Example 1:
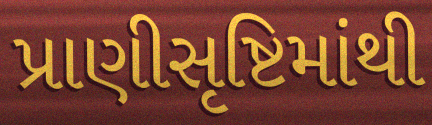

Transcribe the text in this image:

પ્રાણીસૃષ્ટિમાંથી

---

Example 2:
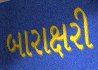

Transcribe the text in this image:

બારાક્ષરી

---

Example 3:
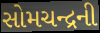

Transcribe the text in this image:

સોમચન્દ્રની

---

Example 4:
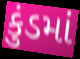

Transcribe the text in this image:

કુંડમાં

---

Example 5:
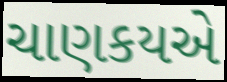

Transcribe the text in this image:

ચાણકયએ